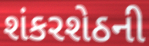
શંકરશેઠની